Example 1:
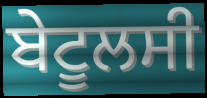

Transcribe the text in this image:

ਬੇਟੂਲਸੀ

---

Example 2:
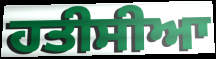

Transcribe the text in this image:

ਹਤੀਸੀਆ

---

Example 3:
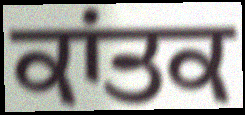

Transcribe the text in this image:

ਕਾਂਤਕ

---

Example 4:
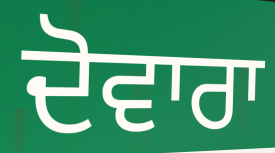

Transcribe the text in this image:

ਦੋਵਾਰਾ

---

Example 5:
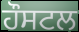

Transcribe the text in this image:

ਹੌਸਟਲ